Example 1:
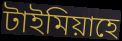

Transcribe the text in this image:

টাইমিয়াহে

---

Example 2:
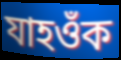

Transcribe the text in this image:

যাহওঁক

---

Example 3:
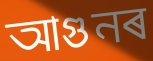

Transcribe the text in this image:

আগুনৰ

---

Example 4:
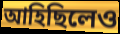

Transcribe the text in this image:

আহিছিলেও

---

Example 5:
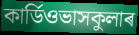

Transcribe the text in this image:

কাৰ্ডিওভাসকুলাৰ